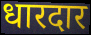
धारदार